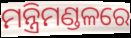
ମନ୍ତ୍ରିମଣ୍ଡଳରେ